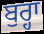
ਬੁਰ੍ਹਾ